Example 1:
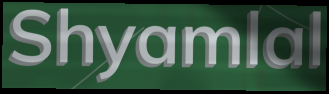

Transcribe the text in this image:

Shyamlal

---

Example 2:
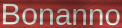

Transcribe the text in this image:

Bonanno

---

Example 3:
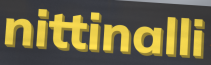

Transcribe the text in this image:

nittinalli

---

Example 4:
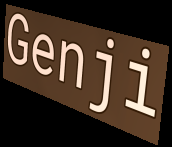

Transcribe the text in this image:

Genji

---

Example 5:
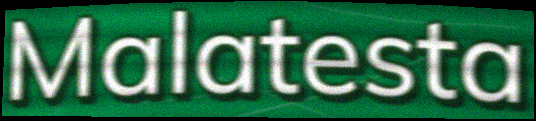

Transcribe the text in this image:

Malatesta